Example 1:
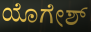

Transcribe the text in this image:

ಯೊಗೇಶ್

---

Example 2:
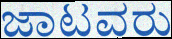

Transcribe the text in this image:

ಜಾಟವರು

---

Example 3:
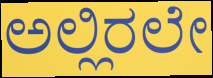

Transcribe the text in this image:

ಅಲ್ಲಿರಲೇ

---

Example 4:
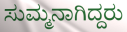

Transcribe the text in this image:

ಸುಮ್ಮನಾಗಿದ್ದರು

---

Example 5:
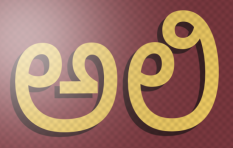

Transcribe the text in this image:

ಅಲಿ